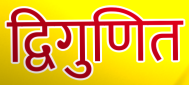
द्विगुणित